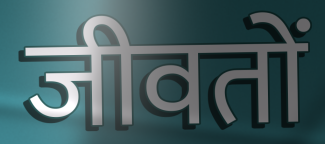
जीवतों